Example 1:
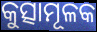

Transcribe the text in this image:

କୁତ୍ସାମୂଳକ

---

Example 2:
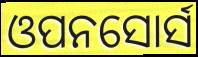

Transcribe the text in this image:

ଓପନସୋର୍ସ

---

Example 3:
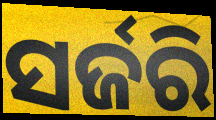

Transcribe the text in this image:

ସର୍ଜରି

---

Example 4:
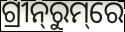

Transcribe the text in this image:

ଗ୍ରୀନ୍‌ରୁମ୍‌ରେ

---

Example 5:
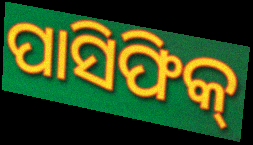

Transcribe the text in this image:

ପାସିଫିକ୍